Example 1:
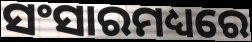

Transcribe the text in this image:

ସଂସାରମଧ୍ୟରେ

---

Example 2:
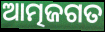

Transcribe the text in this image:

ଆତ୍ମଜଗତ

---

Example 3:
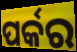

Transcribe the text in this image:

ପର୍କର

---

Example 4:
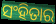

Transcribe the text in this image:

ସଂହିତାର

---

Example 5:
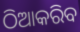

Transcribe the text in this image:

ଠିଆକରିବ